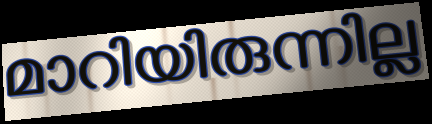
മാറിയിരുന്നില്ല